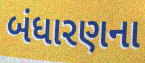
બંધારણના